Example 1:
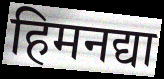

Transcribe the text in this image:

हिमनद्या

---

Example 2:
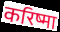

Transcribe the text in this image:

करिष्मा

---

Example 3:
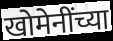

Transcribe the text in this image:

खोमेनींच्या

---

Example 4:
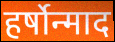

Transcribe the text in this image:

हर्षोन्माद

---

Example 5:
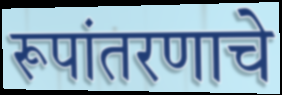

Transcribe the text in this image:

रूपांतरणाचे